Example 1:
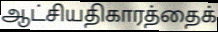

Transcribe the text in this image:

ஆட்சியதிகாரத்தைக்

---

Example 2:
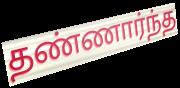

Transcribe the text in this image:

தண்ணார்ந்த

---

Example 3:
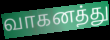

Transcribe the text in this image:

வாகனத்து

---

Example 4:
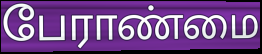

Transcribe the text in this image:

பேராண்மை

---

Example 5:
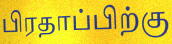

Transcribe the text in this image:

பிரதாப்பிற்கு